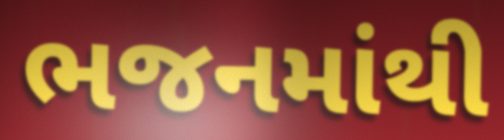
ભજનમાંથી